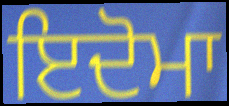
ਇਦੋਮਾ